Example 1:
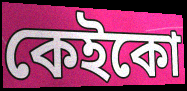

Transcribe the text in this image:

কেইকো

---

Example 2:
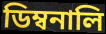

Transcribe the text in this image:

ডিম্বনালি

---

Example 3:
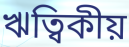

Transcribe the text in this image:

ঋত্বিকীয়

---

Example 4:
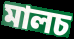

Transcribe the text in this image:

মালচ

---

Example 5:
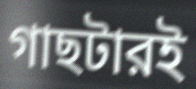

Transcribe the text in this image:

গাছটারই